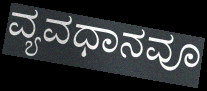
ವ್ಯವಧಾನವೂ